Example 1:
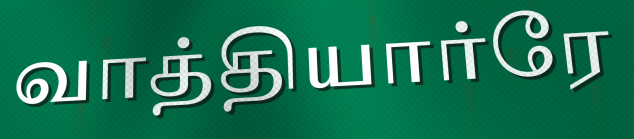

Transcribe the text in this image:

வாத்தியார்ரே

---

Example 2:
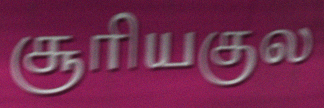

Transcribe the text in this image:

சூரியகுல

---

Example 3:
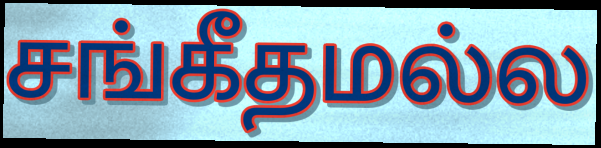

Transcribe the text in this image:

சங்கீதமல்ல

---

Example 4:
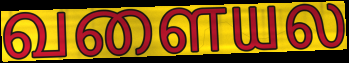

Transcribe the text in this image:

வளையல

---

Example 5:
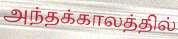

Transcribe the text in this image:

அந்தக்காலத்தில்